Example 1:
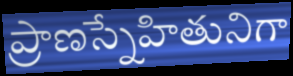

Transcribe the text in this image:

ప్రాణస్నేహితునిగా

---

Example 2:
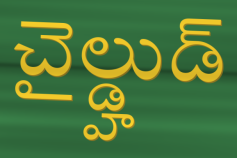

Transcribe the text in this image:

చైల్డ్హుడ్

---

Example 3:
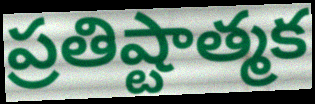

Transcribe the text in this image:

ప్రతిష్టాత్మక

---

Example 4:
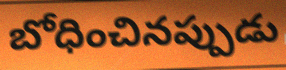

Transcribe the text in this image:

బోధించినప్పుడు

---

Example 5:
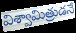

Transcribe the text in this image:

విశ్వామిత్రుడనే